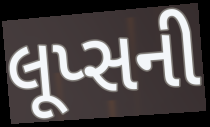
લૂપ્સની